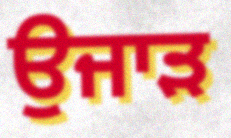
ਉਜਾੜ